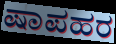
ಷಾಪಹರ